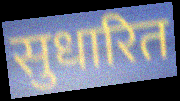
सुधारित